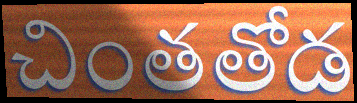
చింతతోడ